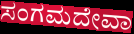
ಸಂಗಮದೇವಾ